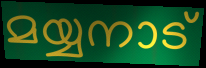
മയ്യനാട്